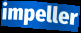
impeller